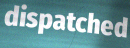
dispatched